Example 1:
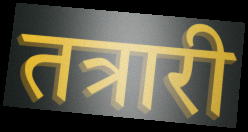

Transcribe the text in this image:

तत्रारी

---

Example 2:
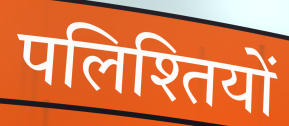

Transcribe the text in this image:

पलिश्‍तियों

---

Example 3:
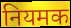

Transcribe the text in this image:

नियमक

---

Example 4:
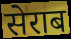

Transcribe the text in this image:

सेराब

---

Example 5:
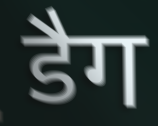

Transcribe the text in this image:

डैग